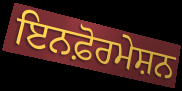
ਇਨਫ਼ੋਰਮੇਸ਼ਨ